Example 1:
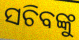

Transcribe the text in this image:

ସଚିବଙ୍କୁ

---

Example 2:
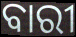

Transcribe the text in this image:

ବାରୀ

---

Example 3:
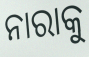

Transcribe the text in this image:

ନାରାକୁ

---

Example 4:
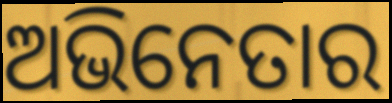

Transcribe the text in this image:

ଅଭିନେତାର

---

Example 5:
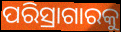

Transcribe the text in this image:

ପରିସ୍ରାଗାରକୁ